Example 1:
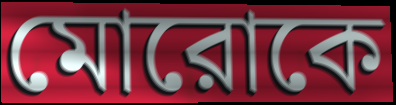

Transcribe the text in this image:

মোরোকে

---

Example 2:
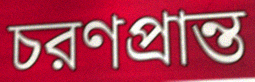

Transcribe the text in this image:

চরণপ্রান্ত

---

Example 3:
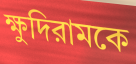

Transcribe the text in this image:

ক্ষুদিরামকে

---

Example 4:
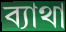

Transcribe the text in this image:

ব্যাথা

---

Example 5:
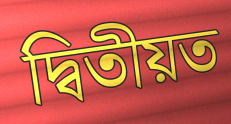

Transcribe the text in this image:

দ্বিতীয়ত